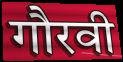
गौरवी